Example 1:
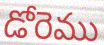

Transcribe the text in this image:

డోరెము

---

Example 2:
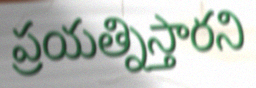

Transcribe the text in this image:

ప్రయత్నిస్తారని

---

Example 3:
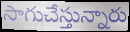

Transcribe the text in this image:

సాగుచేస్తున్నారు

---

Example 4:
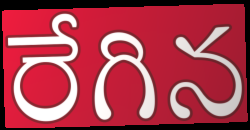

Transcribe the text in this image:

రేగిన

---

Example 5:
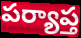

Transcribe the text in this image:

పర్యాప్త